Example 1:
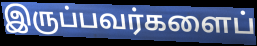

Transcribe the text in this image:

இருப்பவர்களைப்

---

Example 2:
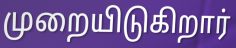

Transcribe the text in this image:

முறையிடுகிறார்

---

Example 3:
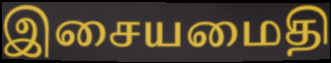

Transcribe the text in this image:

இசையமைதி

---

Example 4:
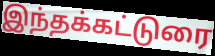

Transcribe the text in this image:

இந்தக்கட்டுரை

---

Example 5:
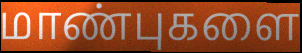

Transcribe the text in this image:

மாண்புகளை